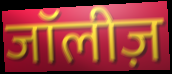
जॉलीज़